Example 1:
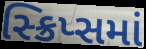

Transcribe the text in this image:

સ્ક્રિપ્સમાં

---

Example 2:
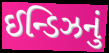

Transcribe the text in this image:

ઈન્ડિઝનું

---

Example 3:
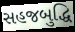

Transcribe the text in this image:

સહજબુદ્ધિ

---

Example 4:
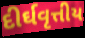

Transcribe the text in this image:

દીર્ઘવૃત્તીય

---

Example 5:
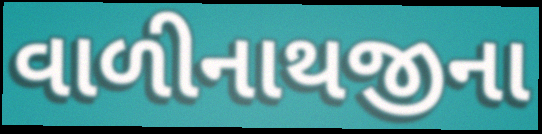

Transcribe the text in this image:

વાળીનાથજીના